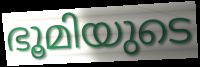
ഭൂമിയുടെ